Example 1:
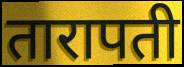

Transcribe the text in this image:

तारापती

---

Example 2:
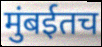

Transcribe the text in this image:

मुंबईतच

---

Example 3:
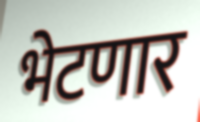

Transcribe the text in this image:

भेटणार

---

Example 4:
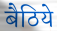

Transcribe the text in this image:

बैठिये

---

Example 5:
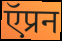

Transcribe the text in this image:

ऍप्रन